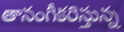
తానంగీకరిస్తున్న